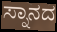
ಸ್ನಾನದ